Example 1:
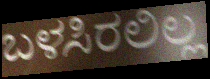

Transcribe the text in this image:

ಬಳಸಿರಲಿಲ್ಲ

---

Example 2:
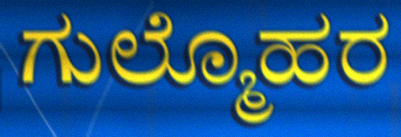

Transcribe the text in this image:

ಗುಲ್ಮೊಹರ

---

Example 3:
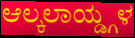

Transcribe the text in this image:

ಆಲ್ಕಲಾಯ್ಡ್ಗಳ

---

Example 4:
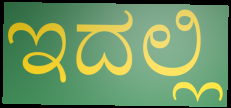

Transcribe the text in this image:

ಇದಲ್ಲಿ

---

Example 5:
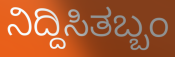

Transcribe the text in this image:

ನಿದ್ದಿಸಿತಬ್ಬಂ